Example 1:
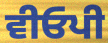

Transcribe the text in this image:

ਵੀਓਪੀ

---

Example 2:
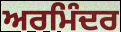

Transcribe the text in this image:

ਅਰਮਿੰਦਰ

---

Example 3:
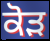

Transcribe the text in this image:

ਕੋੜ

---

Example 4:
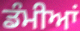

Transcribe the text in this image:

ਡੰਮੀਆਂ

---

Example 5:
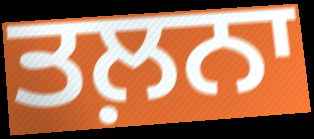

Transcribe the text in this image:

ਤਲ਼ਨਾ